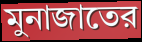
মুনাজাতের